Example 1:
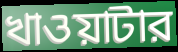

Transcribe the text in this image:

খাওয়াটার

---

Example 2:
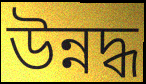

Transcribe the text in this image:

উন্নদ্ধ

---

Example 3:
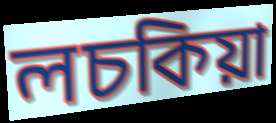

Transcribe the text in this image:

লচকিয়া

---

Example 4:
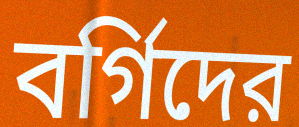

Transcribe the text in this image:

বর্গিদের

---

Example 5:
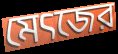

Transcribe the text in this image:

মেৎজের